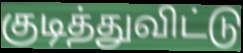
குடித்துவிட்டு